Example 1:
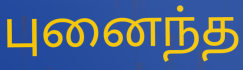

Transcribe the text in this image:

புனைந்த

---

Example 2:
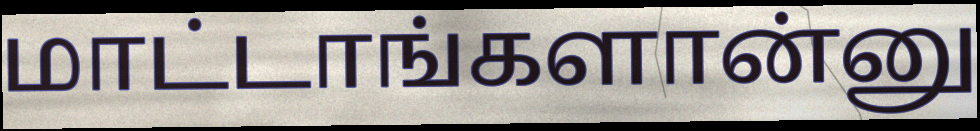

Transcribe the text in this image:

மாட்டாங்களான்னு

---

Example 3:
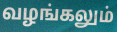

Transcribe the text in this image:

வழங்கலும்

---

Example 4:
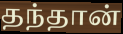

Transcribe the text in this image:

தந்தான்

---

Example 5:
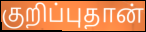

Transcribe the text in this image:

குறிப்புதான்